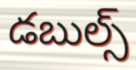
డబుల్స్